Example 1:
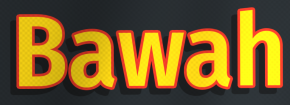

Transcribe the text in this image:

Bawah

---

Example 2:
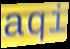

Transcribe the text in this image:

aqi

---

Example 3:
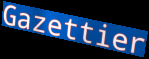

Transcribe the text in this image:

Gazettier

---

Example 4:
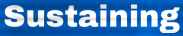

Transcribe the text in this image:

Sustaining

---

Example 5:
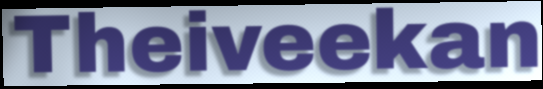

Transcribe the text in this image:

Theiveekan